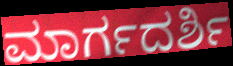
ಮಾರ್ಗದರ್ಶಿ